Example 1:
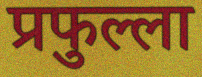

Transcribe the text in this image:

प्रफुल्ला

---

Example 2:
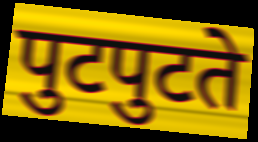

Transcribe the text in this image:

पुटपुटते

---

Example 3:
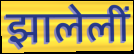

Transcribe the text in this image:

झालेलीं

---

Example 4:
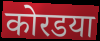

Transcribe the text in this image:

कोरडया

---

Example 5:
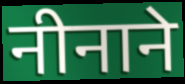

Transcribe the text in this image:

नीनाने